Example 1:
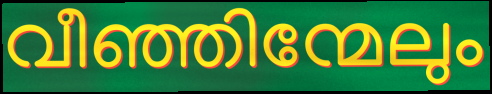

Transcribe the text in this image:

വീഞ്ഞിന്മേലും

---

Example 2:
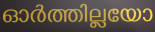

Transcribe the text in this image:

ഓർത്തില്ലയോ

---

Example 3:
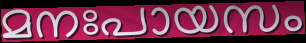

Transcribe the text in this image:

മനഃപായസം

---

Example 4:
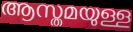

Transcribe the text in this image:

ആസ്തമയുള്ള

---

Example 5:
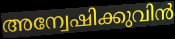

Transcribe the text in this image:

അന്വേഷിക്കുവിൻ